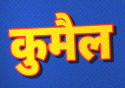
कुमैल